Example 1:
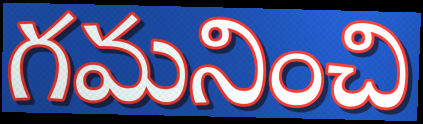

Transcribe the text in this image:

గమనించి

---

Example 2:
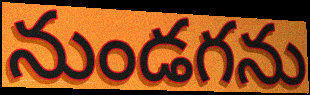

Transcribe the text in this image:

నుండగను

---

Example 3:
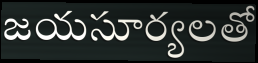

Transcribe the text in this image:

జయసూర్యలతో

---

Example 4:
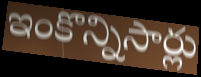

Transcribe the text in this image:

ఇంకొన్నిసార్లు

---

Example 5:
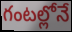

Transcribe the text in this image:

గంటల్లోనే